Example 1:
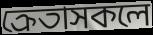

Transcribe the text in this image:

ক্ৰেতাসকলে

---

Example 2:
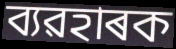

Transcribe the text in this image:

ব্যৱহাৰক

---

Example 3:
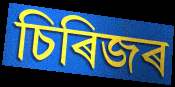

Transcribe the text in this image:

চিৰিজৰ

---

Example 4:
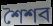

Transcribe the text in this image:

শৈশব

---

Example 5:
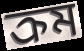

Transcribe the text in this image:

ক্ৰম